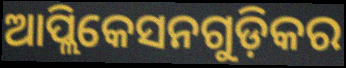
ଆପ୍ଲିକେସନଗୁଡ଼ିକର